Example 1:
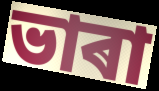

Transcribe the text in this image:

ভাৰা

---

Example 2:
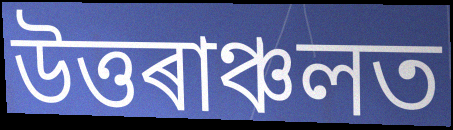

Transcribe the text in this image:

উত্তৰাঞ্চলত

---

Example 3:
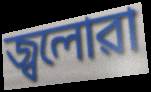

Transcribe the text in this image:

জ্বলোৱা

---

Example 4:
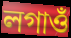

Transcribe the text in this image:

লগাওঁ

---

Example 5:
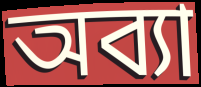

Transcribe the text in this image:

অব্যা